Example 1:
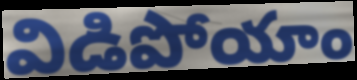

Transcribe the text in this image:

విడిపోయాం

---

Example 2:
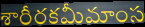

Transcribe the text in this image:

శారీరకమీమాంస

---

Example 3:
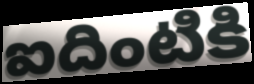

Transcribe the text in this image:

ఐదింటికి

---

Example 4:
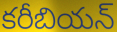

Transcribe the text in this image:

కరీబియన్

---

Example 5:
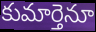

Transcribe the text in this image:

కుమార్తెనూ